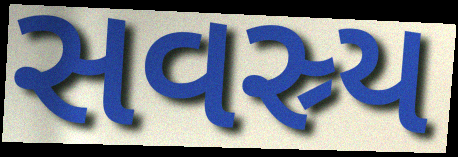
સવસ્ર્ય